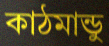
কাঠমান্ডু